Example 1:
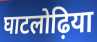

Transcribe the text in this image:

घाटलोढ़िया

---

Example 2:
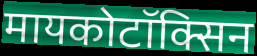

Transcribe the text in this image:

मायकोटॉक्सिन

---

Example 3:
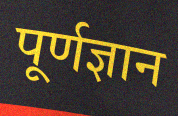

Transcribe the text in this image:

पूर्णज्ञान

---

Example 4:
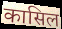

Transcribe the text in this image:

कासिल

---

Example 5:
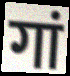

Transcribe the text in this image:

गां